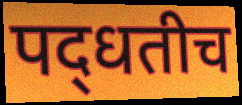
पद्धतीच